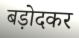
बड़ोदकर